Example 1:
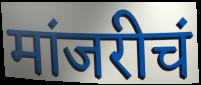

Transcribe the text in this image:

मांजरीचं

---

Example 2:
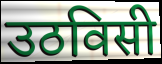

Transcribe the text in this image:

उठविसी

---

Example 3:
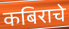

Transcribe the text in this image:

कबिराचे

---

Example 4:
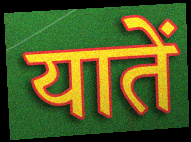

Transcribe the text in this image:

यातें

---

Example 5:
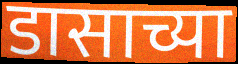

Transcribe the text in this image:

डासाच्या